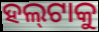
ହଲ୍‌ଟାକୁ